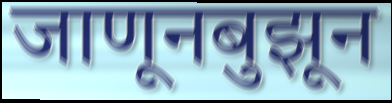
जाणूनबुझून